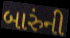
બારુંની